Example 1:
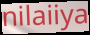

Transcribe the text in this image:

nilaiiya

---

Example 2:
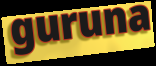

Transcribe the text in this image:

guruna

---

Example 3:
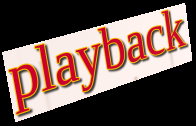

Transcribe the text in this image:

playback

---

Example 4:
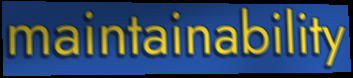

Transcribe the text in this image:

maintainability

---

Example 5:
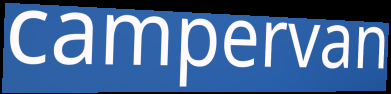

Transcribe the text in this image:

campervan